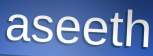
aseeth